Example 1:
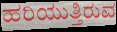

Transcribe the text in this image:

ಹರಿಯುತ್ತಿರುವ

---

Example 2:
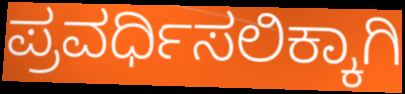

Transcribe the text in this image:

ಪ್ರವರ್ಧಿಸಲಿಕ್ಕಾಗಿ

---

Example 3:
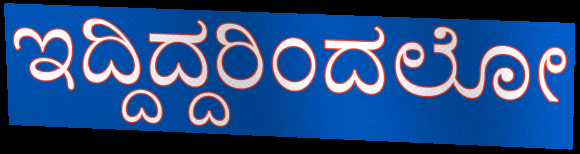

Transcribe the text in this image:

ಇದ್ದಿದ್ದರಿಂದಲೋ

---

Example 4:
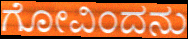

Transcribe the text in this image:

ಗೋವಿಂದನು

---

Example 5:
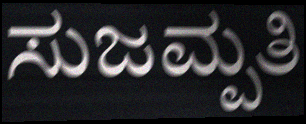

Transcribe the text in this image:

ಸುಜಮ್ಪತಿ